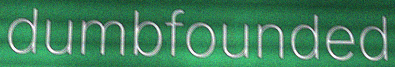
dumbfounded